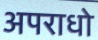
अपराधो